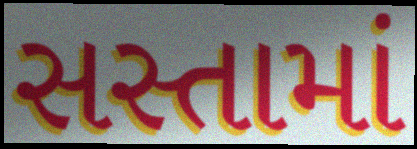
સસ્તામાં